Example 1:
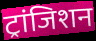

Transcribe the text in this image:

ट्रांजिशन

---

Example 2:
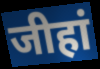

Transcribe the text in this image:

जीहां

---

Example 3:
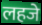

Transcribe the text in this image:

लहजे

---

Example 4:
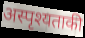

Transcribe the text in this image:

अस्पृश्यताकी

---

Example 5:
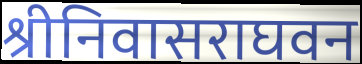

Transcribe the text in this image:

श्रीनिवासराघवन